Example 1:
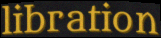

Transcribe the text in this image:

libration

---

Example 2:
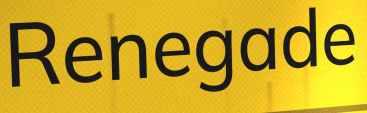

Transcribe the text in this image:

Renegade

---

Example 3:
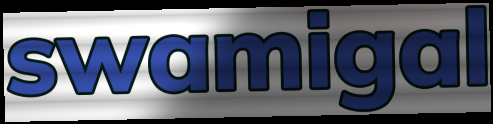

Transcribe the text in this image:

swamigal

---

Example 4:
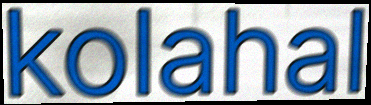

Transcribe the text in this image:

kolahal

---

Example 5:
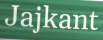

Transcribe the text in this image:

Jajkant